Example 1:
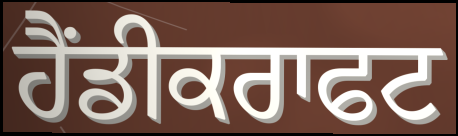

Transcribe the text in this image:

ਹੈਂਡੀਕਰਾਫਟ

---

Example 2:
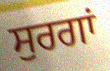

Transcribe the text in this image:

ਸੁਰਗਾਂ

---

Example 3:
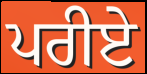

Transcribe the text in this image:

ਪਰੀਏ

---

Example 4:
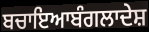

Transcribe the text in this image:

ਬਚਾਇਆਬੰਗਲਾਦੇਸ਼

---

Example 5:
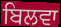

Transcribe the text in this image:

ਬਿਲਵਾ